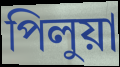
পিলুয়া